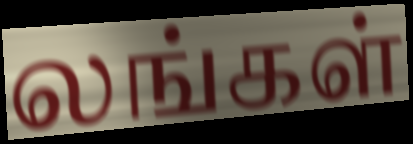
லங்கள்